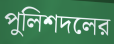
পুলিশদলের